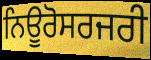
ਨਿਊਰੋਸਰਜਰੀ